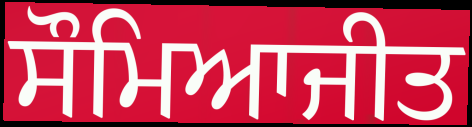
ਸੌਮਿਆਜੀਤ